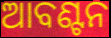
ଆବଣ୍ଟନ